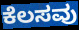
ಕೆಲಸವು